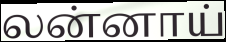
லன்னாய்